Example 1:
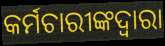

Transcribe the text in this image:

କର୍ମଚାରୀଙ୍କଦ୍ୱାରା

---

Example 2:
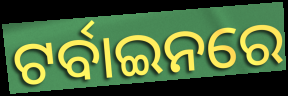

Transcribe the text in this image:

ଟର୍ବାଇନରେ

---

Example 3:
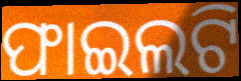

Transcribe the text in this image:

ଫାଇଲଟି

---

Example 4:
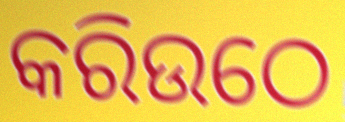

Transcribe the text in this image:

କରିଉଠେ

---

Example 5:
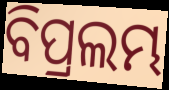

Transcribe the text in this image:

ବିପ୍ରଲମ୍ଭ